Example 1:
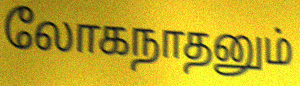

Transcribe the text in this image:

லோகநாதனும்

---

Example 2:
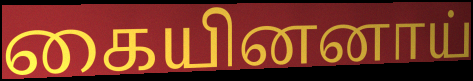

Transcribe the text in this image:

கையினனாய்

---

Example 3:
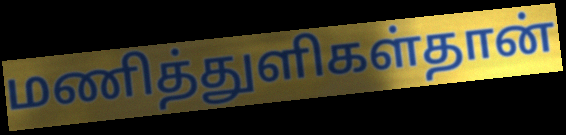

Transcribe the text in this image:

மணித்துளிகள்தான்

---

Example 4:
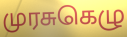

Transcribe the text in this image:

முரசுகெழு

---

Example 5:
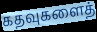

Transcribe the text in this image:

கதவுகளைத்